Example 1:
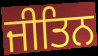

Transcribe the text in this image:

ਜੀਤਿਨ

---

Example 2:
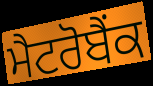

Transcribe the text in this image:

ਮੈਟਰੋਬੈਂਕ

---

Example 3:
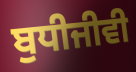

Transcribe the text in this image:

ਬੁਧੀਜੀਵੀ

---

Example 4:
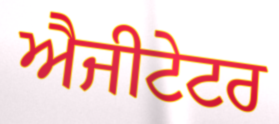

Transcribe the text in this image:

ਐਜੀਟੇਟਰ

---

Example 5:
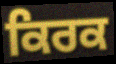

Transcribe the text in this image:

ਕਿਰਕ